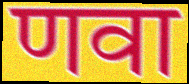
णवा